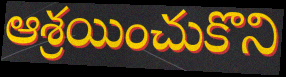
ఆశ్రయించుకొని